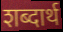
शब्दार्थ